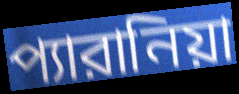
প্যারানিয়া